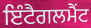
ਇੰਟੈਗਲਮੈਂਟ